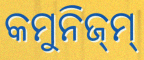
କମୁନିଜ୍‌ମ୍